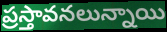
ప్రస్తావనలున్నాయి